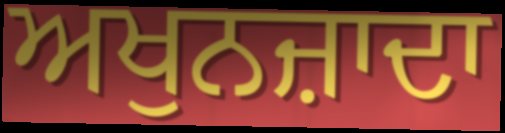
ਅਖੁਨਜ਼ਾਦਾ